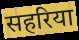
सहरिया